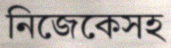
নিজেকেসহ